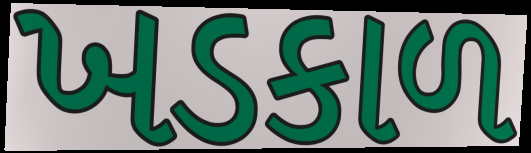
ખડકાળ